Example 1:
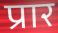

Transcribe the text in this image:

प्रार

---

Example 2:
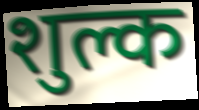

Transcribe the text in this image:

शुल्‍क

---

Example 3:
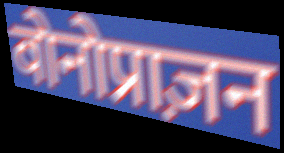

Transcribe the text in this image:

वोनोप्राज़न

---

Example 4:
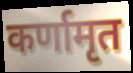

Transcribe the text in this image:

कर्णामृत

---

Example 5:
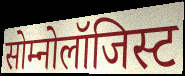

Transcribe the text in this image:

सोम्नोलॉजिस्ट